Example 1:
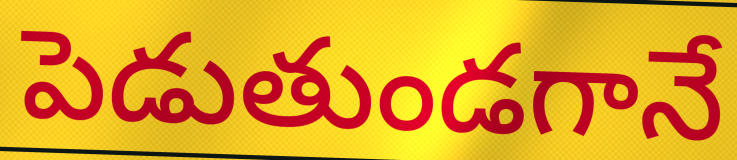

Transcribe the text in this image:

పెడుతుండగానే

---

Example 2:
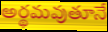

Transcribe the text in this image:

అర్థమవుతూనే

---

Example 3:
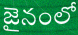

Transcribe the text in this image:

జైనంలో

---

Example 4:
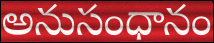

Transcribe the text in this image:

అనుసంధానం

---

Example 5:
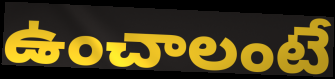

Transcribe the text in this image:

ఉంచాలంటే